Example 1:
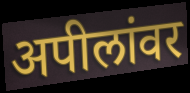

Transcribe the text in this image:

अपीलांवर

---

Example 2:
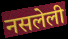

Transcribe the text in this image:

नसलेली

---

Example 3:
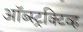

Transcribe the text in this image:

ऑब्स्ट्रक्टिव्ह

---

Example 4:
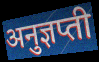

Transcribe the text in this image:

अनुज्ञप्ती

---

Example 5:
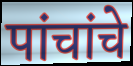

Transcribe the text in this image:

पांचांचे